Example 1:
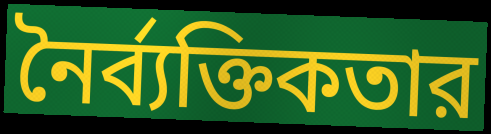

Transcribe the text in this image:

নৈর্ব্যক্তিকতার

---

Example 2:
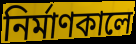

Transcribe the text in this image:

নির্মাণকালে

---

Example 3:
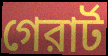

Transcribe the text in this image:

গেরার্ট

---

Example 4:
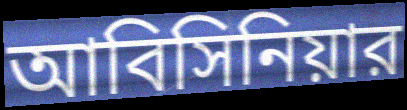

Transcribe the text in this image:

আবিসিনিয়ার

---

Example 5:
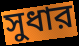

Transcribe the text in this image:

সুধার